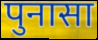
पुनासा